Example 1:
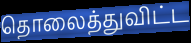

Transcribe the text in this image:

தொலைத்துவிட்ட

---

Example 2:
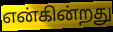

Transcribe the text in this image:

என்கின்றது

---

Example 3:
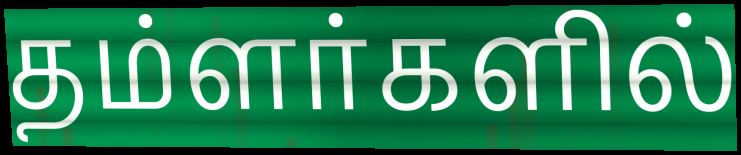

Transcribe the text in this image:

தம்ளர்களில்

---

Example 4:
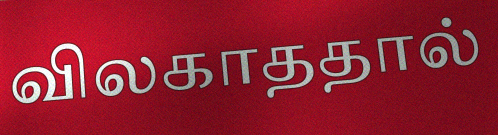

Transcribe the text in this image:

விலகாததால்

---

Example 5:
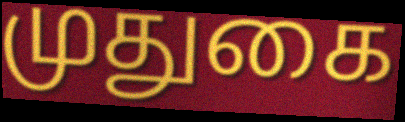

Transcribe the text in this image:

முதுகை